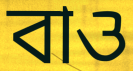
বাও